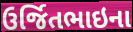
ઉર્જિતભાઇના